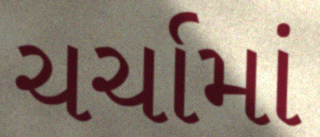
ચર્ચામાં